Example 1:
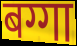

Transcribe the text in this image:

बग्गा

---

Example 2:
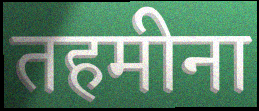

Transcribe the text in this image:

तहमीना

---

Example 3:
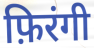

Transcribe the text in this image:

फ़िरंगी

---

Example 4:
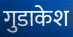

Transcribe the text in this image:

गुडाकेश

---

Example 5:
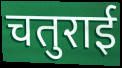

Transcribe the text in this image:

चतुराई